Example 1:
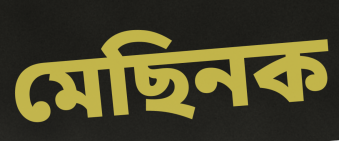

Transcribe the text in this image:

মেছিনক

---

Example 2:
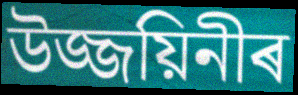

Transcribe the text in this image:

উজ্জয়িনীৰ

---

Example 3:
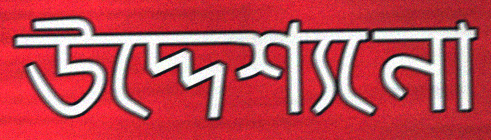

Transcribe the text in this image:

উদ্দেশ্যনো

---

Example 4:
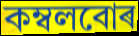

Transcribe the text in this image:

কম্বলবোৰ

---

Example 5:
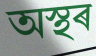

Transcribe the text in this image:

অস্থৰ